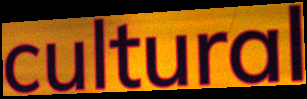
cultural